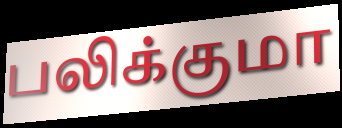
பலிக்குமா